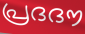
പ്രദദൗ